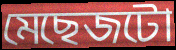
মেছেজটো